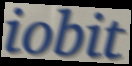
iobit